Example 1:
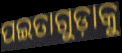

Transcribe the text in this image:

ପଇତାଗୁଡ଼ାକୁ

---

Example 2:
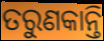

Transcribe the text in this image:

ତରୁଣକାନ୍ତି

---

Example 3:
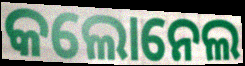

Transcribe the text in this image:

କଲୋନେଲ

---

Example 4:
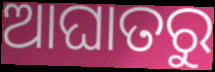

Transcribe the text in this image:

ଆଘାତରୁ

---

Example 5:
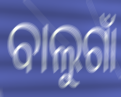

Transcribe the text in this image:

ବାଲୁଗାଁ